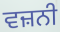
ਵਜ਼ਨੀ